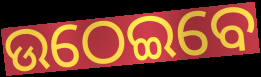
ଉଠେଇବେ